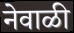
नेवाळी